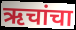
ऋचांचा